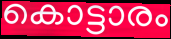
കൊട്ടാരം